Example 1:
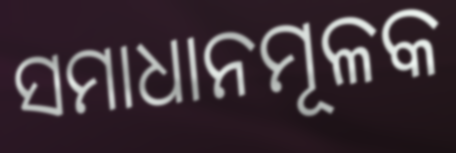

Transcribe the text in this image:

ସମାଧାନମୂଳକ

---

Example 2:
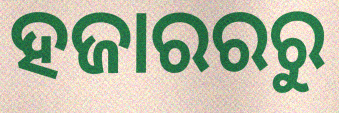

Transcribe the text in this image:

ହଜାରରରୁ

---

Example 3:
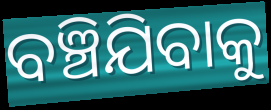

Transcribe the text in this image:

ବଞ୍ଚିଯିବାକୁ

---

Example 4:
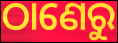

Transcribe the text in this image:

ଠାଣେରୁ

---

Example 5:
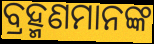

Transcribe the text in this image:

ବ୍ରହ୍ମଣମାନଙ୍କ